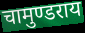
चामुण्डराय